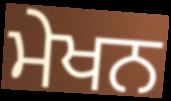
ਮੇਖਨ